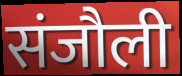
संजौली